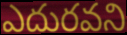
ఎదురవని